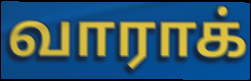
வாராக்